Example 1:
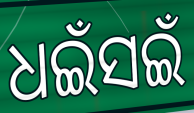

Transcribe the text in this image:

ଧଇଁସଇଁ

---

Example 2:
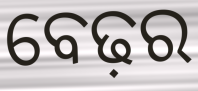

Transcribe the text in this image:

ବେଢ଼ର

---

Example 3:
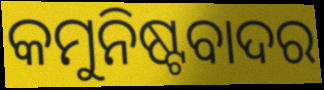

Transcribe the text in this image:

କମୁନିଷ୍ଟବାଦର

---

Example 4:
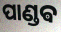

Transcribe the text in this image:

ପାଣ୍ଡଵ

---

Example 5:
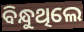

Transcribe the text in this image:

ବିନ୍ଧୁଥିଲେ